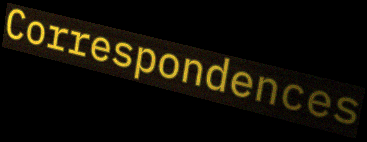
Correspondences